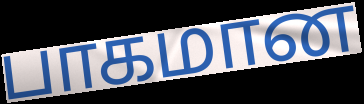
பாகமான